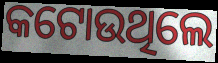
କଟୋଉଥିଲେ